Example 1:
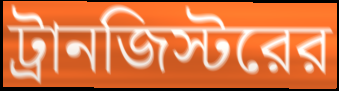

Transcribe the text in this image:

ট্রানজিস্টরের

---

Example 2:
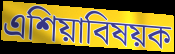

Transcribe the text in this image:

এশিয়াবিষয়ক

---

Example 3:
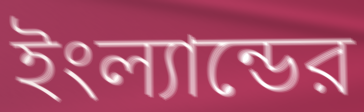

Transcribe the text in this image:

ইংল্যান্ডের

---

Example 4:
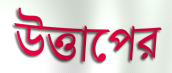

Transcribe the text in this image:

উত্তাপের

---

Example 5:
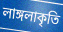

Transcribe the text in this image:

লাঙ্গলাকৃতি